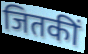
जितकीं